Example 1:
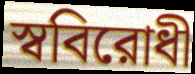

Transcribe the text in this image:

স্ববিরোধী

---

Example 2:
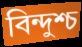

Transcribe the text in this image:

বিন্দুশ্চ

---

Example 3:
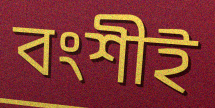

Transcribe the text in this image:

বংশীই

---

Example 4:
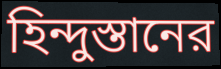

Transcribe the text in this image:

হিন্দুস্তানের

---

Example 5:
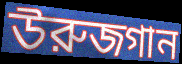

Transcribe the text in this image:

উরুজগান